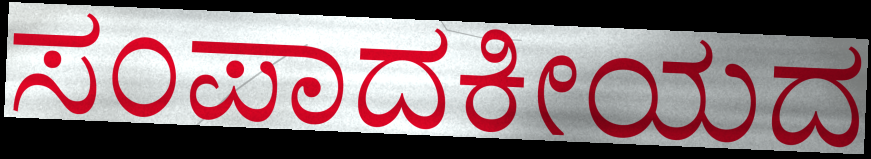
ಸಂಪಾದಕೀಯದ